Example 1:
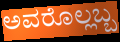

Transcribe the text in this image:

ಅವರೊಲ್ಲಬ್ಬ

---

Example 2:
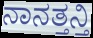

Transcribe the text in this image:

ನಾನತ್ತನ್ತಿ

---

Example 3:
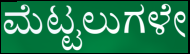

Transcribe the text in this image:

ಮೆಟ್ಟಲುಗಳೇ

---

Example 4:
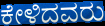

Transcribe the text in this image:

ಕೇಳಿದವರು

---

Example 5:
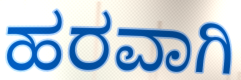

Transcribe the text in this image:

ಹರವಾಗಿ